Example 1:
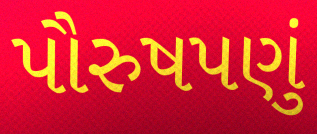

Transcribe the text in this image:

પૌરુષપણું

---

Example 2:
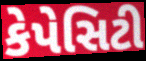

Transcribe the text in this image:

કેપેસિટી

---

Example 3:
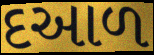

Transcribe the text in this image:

દઆળ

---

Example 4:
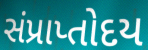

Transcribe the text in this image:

સંપ્રાપ્તોદય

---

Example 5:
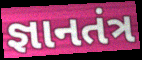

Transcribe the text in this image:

જ્ઞાનતંત્ર